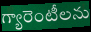
గ్యారెంటీలను